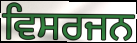
ਵਿਸਰਜਨ